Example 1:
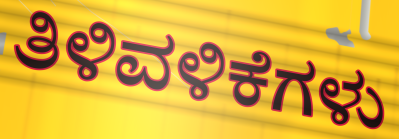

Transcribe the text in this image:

ತಿಳಿವಳಿಕೆಗಳು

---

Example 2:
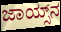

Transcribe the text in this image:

ಜಾಯ್ಸ್‌ನ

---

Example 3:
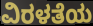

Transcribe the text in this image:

ವಿರಳತೆಯ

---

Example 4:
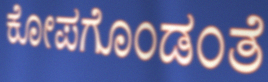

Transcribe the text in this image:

ಕೋಪಗೊಂಡಂತೆ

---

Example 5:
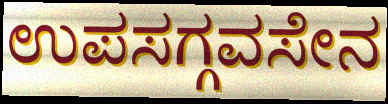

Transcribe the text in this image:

ಉಪಸಗ್ಗವಸೇನ